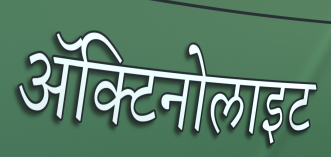
ॲक्टिनोलाइट